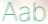
Aab